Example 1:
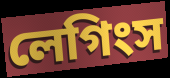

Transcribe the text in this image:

লেগিংস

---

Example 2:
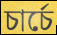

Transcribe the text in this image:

চার্চে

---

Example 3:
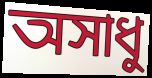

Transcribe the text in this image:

অসাধু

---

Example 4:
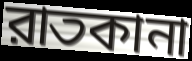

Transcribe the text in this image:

রাতকানা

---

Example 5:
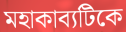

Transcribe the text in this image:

মহাকাব্যটিকে